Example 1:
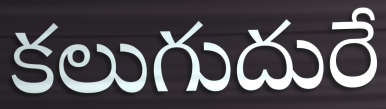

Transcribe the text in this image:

కలుగుదురే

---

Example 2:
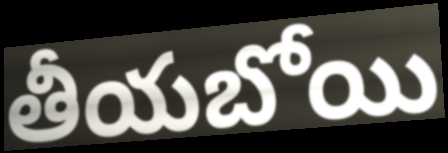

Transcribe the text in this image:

తీయబోయి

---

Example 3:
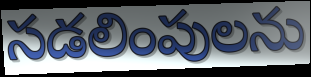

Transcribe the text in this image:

సడలింపులను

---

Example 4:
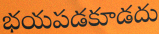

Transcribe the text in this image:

భయపడకూడదు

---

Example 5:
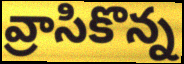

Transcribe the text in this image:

వ్రాసికొన్న